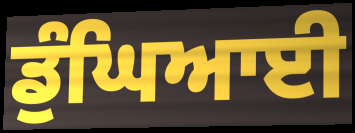
ਡੁੰਘਿਆਈ